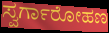
ಸ್ವರ್ಗಾರೋಹಣ